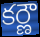
కర్ణౌ